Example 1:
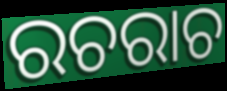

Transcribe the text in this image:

ରଚରାଚ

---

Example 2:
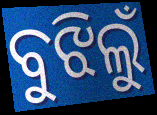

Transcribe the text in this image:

ବୁଝିଲୁଁ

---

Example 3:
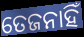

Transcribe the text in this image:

ତେଜନାହିଁ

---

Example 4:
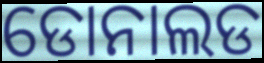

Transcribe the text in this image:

ଡୋନାଲଡ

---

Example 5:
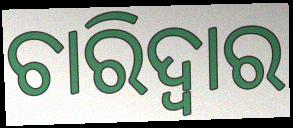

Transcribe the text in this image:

ଚାରିଦ୍ୱାର